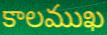
కాలముఖ